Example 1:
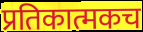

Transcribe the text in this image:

प्रतिकात्मकच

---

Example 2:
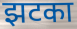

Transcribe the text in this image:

झटका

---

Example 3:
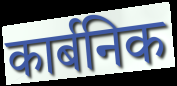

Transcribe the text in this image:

कार्बनिक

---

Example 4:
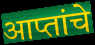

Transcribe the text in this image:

आप्तांचे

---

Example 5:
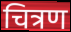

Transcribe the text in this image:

चित्रण